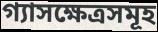
গ্যাসক্ষেত্রসমূহ